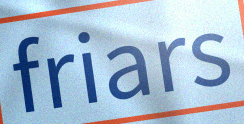
friars